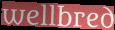
wellbred